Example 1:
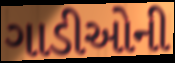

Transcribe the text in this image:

ગાડીઓની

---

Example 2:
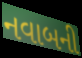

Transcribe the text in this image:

નવાબની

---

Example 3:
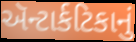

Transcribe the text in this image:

ઍન્ટાર્કટિકાનું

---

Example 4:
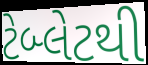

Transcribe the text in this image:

ટેબ્લેટથી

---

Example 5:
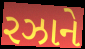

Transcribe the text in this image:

રઝાને